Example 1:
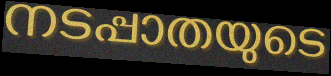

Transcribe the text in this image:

നടപ്പാതയുടെ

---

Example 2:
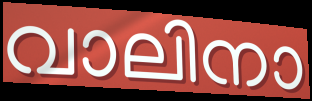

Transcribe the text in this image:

വാലിനാ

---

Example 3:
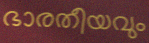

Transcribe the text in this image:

ഭാരതീയവും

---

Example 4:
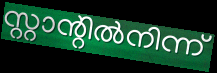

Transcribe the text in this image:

സ്റ്റാന്റിൽനിന്ന്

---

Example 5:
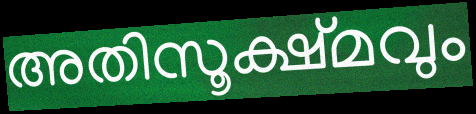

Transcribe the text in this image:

അതിസൂക്ഷ്മവും